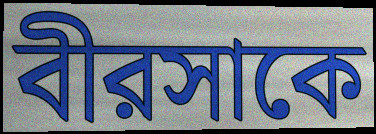
বীরসাকে